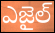
ఎజైల్